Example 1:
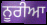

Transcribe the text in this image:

ਨੂਰੀਆ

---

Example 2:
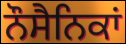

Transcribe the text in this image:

ਨੌਸੈਨਿਕਾਂ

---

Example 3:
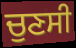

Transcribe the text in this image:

ਚੁਣਸੀ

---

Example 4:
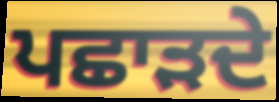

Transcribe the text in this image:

ਪਛਾੜਦੇ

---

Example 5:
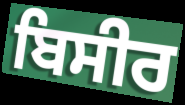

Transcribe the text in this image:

ਬਿਸੀਰ